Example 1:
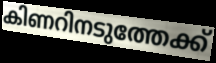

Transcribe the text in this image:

കിണറിനടുത്തേക്ക്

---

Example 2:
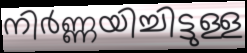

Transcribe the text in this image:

നിർണ്ണയിച്ചിട്ടുള്ള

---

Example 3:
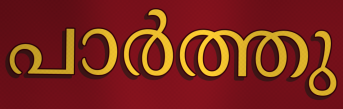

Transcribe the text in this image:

പാർത്തു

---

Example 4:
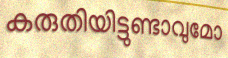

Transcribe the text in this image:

കരുതിയിട്ടുണ്ടാവുമോ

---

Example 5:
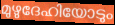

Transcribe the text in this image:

മുഴുദേഹിയോടും